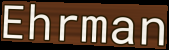
Ehrman